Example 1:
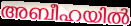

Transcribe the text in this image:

അബീഹയിൽ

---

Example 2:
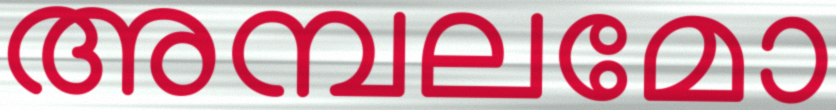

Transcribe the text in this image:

അമ്പലമോ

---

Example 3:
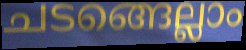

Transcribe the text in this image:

ചടങ്ങെല്ലാം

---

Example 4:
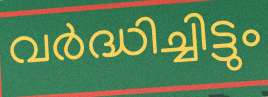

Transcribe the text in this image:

വർദ്ധിച്ചിട്ടും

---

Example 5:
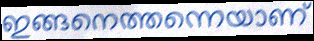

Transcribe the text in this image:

ഇങ്ങനെത്തന്നെയാണ്